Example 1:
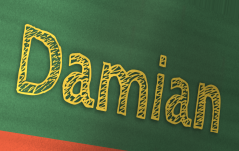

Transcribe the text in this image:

Damian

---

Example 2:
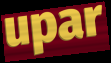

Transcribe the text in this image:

upar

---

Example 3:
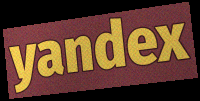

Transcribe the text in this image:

yandex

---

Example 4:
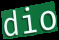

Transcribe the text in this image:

dio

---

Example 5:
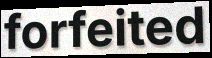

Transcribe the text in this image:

forfeited